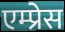
एम्प्रेस